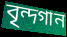
বৃন্দগান